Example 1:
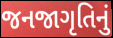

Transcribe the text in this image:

જનજાગૃતિનું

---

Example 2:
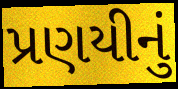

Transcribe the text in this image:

પ્રણયીનું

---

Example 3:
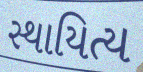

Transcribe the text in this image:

સ્થાયિત્ય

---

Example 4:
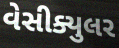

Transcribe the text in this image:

વેસીક્યુલર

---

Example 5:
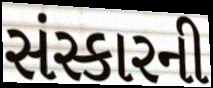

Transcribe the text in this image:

સંસ્કારની